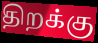
திறக்கு